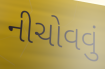
નીચોવવું